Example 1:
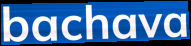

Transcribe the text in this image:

bachava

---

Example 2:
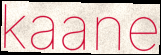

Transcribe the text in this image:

kaane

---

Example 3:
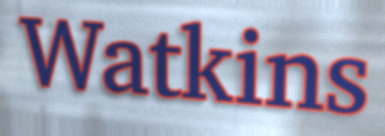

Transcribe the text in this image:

Watkins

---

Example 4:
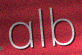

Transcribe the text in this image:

alb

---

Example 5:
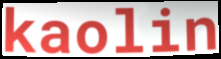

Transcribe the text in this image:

kaolin